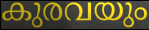
കുരവയും